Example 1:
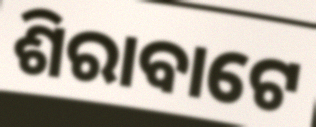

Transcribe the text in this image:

ଶିରାବାଟେ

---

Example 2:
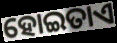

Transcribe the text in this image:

ହୋଇତାଏ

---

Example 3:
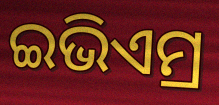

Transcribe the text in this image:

ଇଭିଏମ୍ର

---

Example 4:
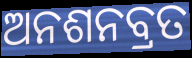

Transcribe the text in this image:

ଅନଶନବ୍ରତ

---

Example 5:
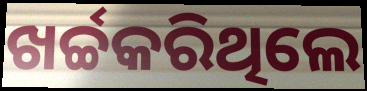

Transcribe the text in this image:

ଖର୍ଚ୍ଚକରିଥିଲେ